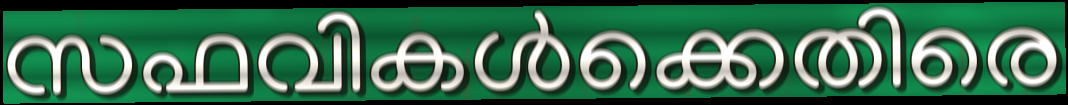
സഫവികൾക്കെതിരെ